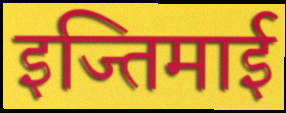
इज्तिमाई